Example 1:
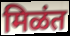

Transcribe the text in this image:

मिळंत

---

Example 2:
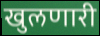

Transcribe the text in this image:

खुलणारी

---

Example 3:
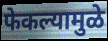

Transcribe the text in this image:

फेकल्यामुळे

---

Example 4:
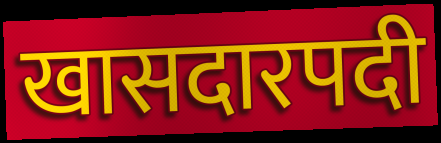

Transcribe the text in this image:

खासदारपदी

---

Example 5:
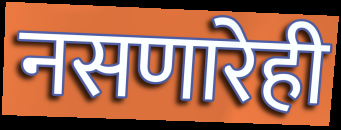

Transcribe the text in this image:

नसणारेही